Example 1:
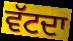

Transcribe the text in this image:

ਵੱਟਦਾ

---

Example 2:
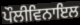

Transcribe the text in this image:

ਪੌਲੀਵਿਨਾਇਲ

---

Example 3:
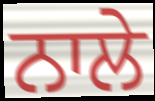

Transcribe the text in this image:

ਨਾਲੇ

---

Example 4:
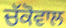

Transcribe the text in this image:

ਚੱਕੋਵਾਲ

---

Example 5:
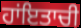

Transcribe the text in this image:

ਹਾਂਇਤਾਚੀ